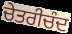
ਚੇਤਰੀਚੰਦ